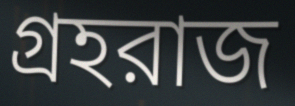
গ্রহরাজ